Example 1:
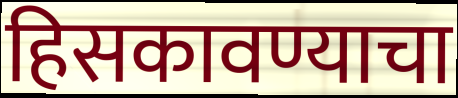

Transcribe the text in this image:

हिसकावण्याचा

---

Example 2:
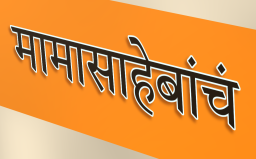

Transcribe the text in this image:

मामासाहेबांचं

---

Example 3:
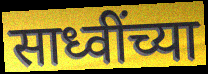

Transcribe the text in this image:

साध्वींच्या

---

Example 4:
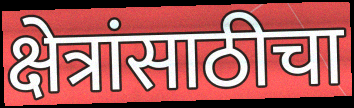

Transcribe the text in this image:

क्षेत्रांसाठीचा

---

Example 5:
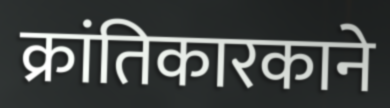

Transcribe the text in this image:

क्रांतिकारकाने